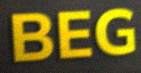
BEG